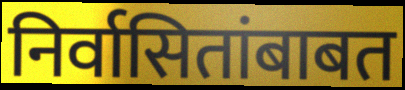
निर्वासितांबाबत